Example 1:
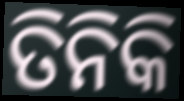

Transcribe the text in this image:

ତିନିକି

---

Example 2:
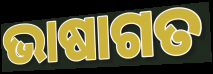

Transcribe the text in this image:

ଭାଷାଗତ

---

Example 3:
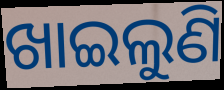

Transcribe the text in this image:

ଖାଇଲୁଣି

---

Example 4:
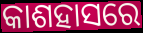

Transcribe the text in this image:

କାଶହାସରେ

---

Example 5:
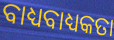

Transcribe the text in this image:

ବାଧ୍ୟବାଧ୍ୟକତା